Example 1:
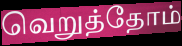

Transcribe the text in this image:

வெறுத்தோம்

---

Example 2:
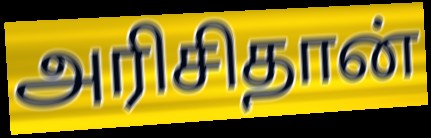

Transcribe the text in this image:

அரிசிதான்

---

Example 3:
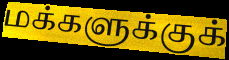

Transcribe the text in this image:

மக்களுக்குக்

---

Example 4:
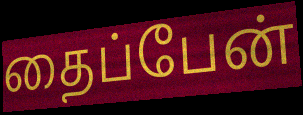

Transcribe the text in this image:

தைப்பேன்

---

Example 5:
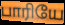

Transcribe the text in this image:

பாரியே